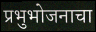
प्रभुभोजनाचा